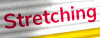
Stretching